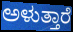
ಅಳುತ್ತಾರೆ